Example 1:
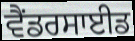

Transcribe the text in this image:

ਵੈਂਡਰਸਾਈਡ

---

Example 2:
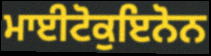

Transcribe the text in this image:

ਮਾਈਟੋਕੁਇਨੋਨ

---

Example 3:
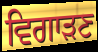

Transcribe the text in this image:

ਵਿਗਾੜਣ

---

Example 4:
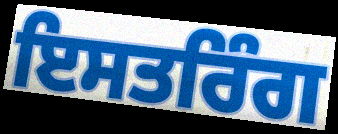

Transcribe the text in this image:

ਇਸਤਰਿੰਗ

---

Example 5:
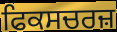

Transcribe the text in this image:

ਫਿਕਸਚਰਜ਼